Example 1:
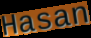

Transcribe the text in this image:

Hasan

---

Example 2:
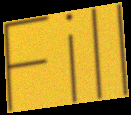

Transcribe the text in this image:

Fill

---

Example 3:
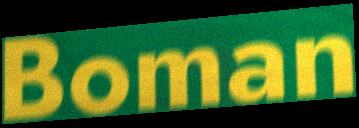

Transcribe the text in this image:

Boman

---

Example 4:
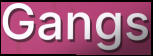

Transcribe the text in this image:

Gangs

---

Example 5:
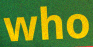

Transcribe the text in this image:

who